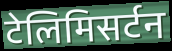
टेलिमिसर्टन